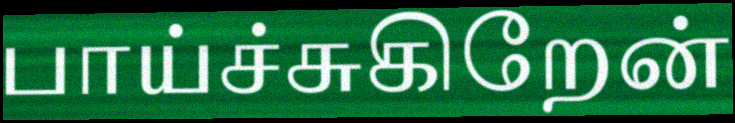
பாய்ச்சுகிறேன்